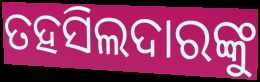
ତହସିଲଦାରଙ୍କୁ